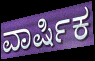
ವಾರ್ಷಿಕ